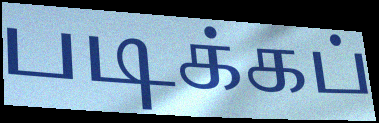
படிக்கப்